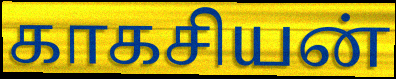
காகசியன்